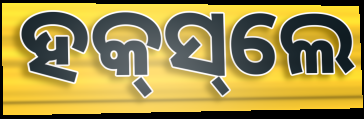
ହକ୍‌ସ୍‌ଲେ